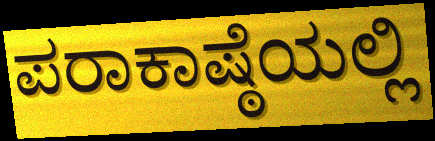
ಪರಾಕಾಷ್ಠೆಯಲ್ಲಿ